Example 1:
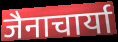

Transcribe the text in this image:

जैनाचार्या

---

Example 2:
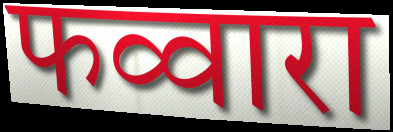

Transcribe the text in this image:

फव्वारा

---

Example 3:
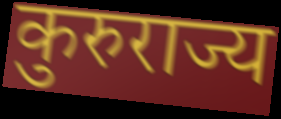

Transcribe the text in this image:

कुरुराज्य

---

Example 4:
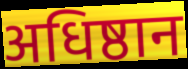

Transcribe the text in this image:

अधिष्ठान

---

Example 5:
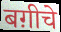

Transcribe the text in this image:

बग़ीचे